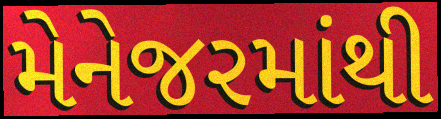
મેનેજરમાંથી